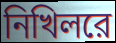
নিখিলরে